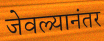
जेवल्यानंतर